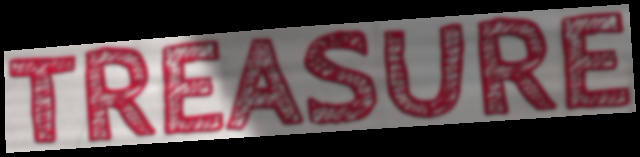
TREASURE